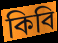
কিবি